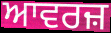
ਆਵਰਜ਼